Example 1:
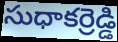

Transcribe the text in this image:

సుధాకర్రెడ్డి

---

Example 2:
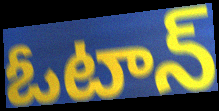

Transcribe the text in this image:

ఓటాన్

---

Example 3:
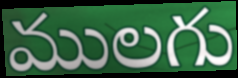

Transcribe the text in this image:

ములగు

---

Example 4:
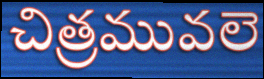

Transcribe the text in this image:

చిత్రమువలె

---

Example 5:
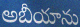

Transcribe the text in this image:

అబీయాను